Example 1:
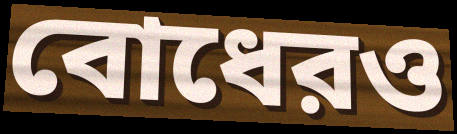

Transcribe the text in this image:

বোধেরও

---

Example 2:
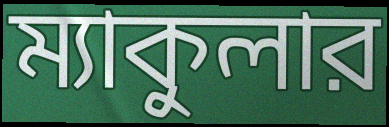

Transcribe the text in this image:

ম্যাকুলার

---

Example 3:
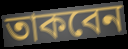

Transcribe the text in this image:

তাকবেন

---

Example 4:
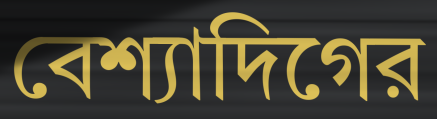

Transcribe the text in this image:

বেশ্যাদিগের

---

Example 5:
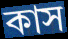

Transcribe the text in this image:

কাস